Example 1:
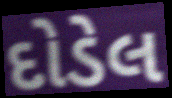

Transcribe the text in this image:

દોડેલ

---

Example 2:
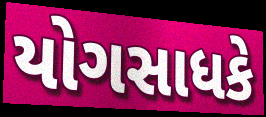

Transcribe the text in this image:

યોગસાધકે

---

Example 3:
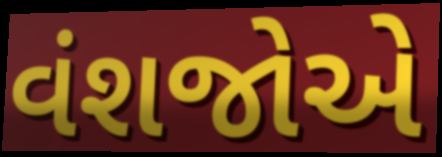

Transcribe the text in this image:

વંશજોએ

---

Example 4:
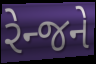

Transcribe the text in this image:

રેન્જને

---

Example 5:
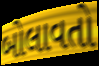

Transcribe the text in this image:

બોલાવતો